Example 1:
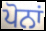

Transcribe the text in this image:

ਪੋਨਾਂ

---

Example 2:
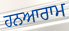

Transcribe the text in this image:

ਹਨਆਰਾਮ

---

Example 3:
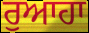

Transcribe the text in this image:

ਰੁਆਹਾ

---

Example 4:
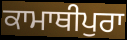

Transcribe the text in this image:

ਕਾਮਾਥੀਪੁਰਾ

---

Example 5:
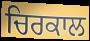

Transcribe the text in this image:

ਚਿਰਕਾਲ